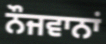
ਨੌਜਵਾਨਾਂ